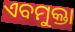
ଏବମୁକ୍ତା